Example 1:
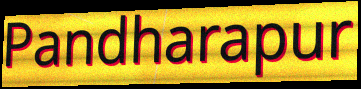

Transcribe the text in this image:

Pandharapur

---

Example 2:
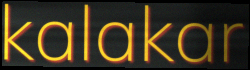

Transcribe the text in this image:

kalakar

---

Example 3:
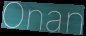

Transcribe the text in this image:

Onan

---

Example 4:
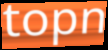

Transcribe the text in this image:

topn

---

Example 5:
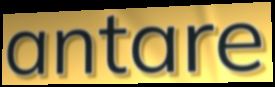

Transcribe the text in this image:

antare